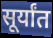
सूर्यांत